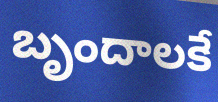
బృందాలకే